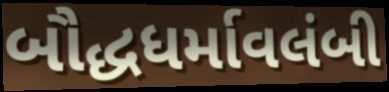
બૌદ્ધધર્માવલંબી